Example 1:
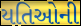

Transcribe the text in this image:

યતિઓની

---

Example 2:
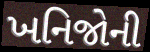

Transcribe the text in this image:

ખનિજોની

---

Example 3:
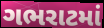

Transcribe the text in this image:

ગભરાટમાં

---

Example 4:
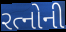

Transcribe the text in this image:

રત્નોની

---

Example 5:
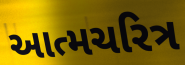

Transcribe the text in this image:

આત્મચરિત્ર